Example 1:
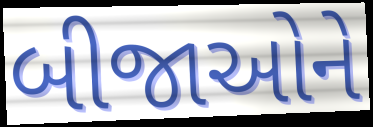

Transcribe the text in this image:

બીજાઓને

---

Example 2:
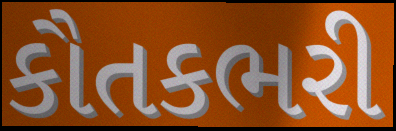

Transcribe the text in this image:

કૌતકભરી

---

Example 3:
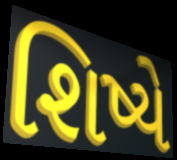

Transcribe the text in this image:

શિષ્યે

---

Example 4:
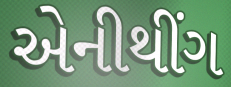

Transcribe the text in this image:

એનીથીંગ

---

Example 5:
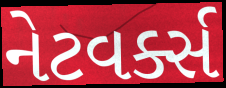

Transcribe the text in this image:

નેટવર્ક્સ